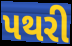
પથરી